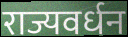
राज्यवर्धन